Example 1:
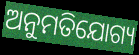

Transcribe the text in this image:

ଅନୁମତିଯୋଗ୍ୟ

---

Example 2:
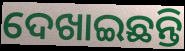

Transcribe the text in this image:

ଦେଖାଇଛନ୍ତି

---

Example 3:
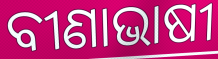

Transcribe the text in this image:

ବୀଣାଭାଷୀ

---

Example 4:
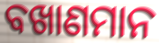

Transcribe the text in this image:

ବଖାଣମାନ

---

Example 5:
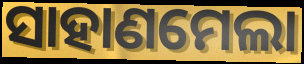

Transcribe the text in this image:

ସାହାଣମେଲା